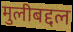
मुलीबद्दल